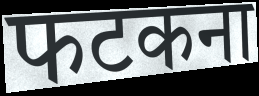
फटकना